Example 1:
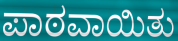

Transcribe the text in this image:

ಪಾಠವಾಯಿತು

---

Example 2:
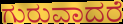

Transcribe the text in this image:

ಗುರುವಾದರೆ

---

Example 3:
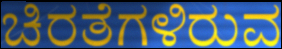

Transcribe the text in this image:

ಚಿರತೆಗಳಿರುವ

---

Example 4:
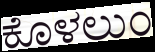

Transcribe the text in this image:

ಕೊಳಲುಂ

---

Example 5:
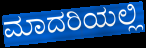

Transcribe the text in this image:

ಮಾದರಿಯಲ್ಲಿ